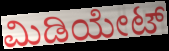
ಮಿಡಿಯೇಟ್